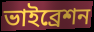
ভাইব্রেশন